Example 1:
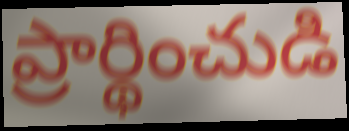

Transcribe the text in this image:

ప్రార్థించుడి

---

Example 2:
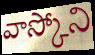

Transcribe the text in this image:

వాస్కోని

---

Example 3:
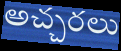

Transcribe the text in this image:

అచ్చరలు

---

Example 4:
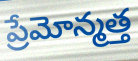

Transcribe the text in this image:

ప్రేమోన్మత్త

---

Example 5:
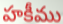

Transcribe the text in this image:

హకీము